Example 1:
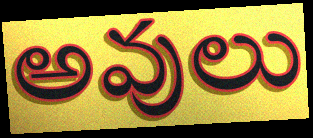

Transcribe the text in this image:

అవులు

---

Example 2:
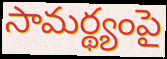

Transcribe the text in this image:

సామర్థ్యంపై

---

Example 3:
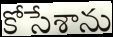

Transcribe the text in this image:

కోసేశాను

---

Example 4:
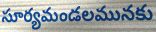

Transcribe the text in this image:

సూర్యమండలమునకు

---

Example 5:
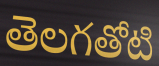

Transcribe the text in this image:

తెలగతోటి